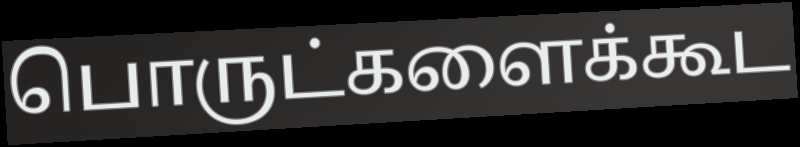
பொருட்களைக்கூட